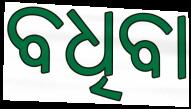
ବଧିବା